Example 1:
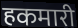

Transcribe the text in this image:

हकमारी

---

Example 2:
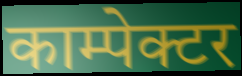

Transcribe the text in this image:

काम्पेक्टर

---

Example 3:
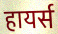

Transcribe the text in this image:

हायर्स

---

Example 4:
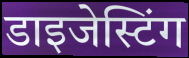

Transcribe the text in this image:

डाइजेस्टिंग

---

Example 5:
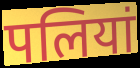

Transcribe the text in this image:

पलियां